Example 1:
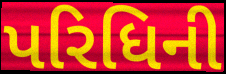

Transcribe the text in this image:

પરિધિની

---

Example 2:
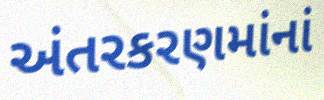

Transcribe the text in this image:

અંતરકરણમાંનાં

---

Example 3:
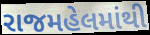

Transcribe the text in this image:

રાજમહેલમાંથી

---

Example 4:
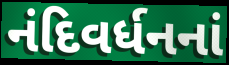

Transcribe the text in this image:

નંદિવર્ધનનાં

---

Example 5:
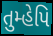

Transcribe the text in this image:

તુમ્હેપિ